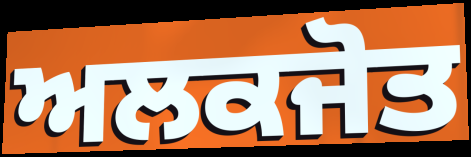
ਅਲਕਜੋਤ